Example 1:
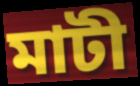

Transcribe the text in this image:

মাটী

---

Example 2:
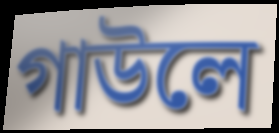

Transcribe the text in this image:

গাউলে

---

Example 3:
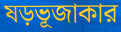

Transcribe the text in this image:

ষড়ভূজাকার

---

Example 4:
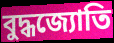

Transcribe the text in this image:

বুদ্ধজ্যোতি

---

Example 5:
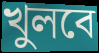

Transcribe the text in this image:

খুলবে